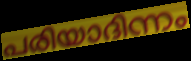
പരിയാദിന്നം